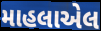
માહલાએલ